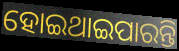
ହୋଇଥାଇପାରନ୍ତି